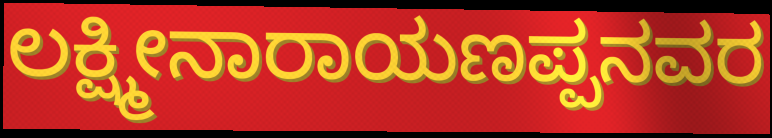
ಲಕ್ಷ್ಮೀನಾರಾಯಣಪ್ಪನವರ